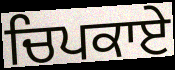
ਚਿਪਕਾਏ